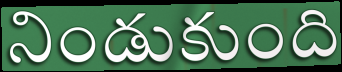
నిండుకుంది